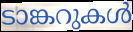
ടാങ്കറുകൾ